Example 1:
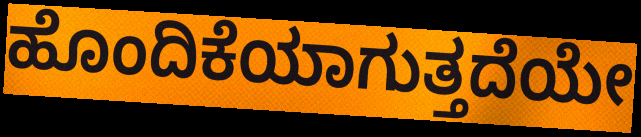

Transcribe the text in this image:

ಹೊಂದಿಕೆಯಾಗುತ್ತದೆಯೇ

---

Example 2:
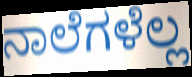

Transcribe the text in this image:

ನಾಲೆಗಳೆಲ್ಲ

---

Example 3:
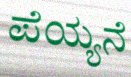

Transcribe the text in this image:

ಪೆಯ್ಯನೆ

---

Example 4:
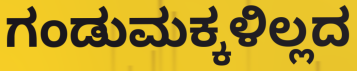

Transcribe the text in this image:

ಗಂಡುಮಕ್ಕಳಿಲ್ಲದ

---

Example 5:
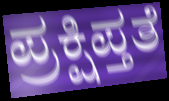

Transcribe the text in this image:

ಪ್ರಕ್ಷಿಪ್ತತೆ